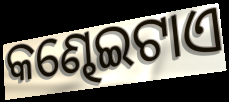
କଣ୍ଢେଇଟାଏ